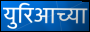
युरिआच्या